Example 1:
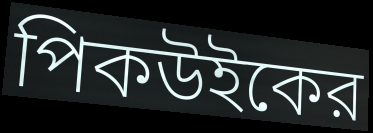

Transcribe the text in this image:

পিকউইকের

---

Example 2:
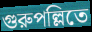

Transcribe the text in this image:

গুরুপল্লিতে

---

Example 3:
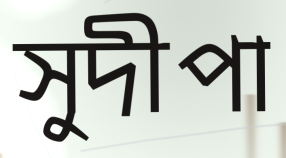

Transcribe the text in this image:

সুদীপা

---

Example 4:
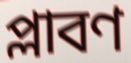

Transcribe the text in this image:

প্লাবণ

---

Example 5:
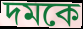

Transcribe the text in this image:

দমকে